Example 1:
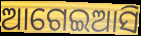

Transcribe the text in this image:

ଆଗେଇଆସି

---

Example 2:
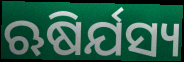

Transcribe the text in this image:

ଋଷିର୍ଯସ୍ୟ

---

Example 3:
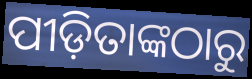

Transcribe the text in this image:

ପୀଡ଼ିତାଙ୍କଠାରୁ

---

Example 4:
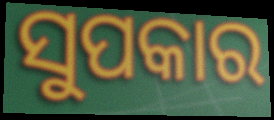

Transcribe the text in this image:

ସୁପକାର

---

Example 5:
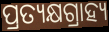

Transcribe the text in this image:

ପ୍ରତ୍ୟକ୍ଷଗ୍ରାହ୍ୟ